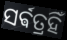
ସର୍ଵତ୍ରହିଁ